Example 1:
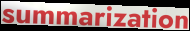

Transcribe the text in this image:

summarization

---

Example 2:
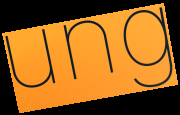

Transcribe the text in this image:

ung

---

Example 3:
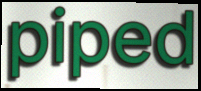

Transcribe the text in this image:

piped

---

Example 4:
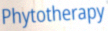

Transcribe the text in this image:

Phytotherapy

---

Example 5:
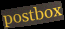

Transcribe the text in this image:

postbox